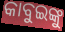
କାବୁଇଙ୍କୁ